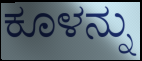
ಕೂಳನ್ನು